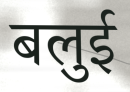
बलुई